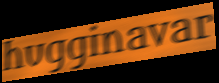
hugginavar